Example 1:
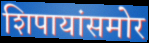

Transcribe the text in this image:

शिपायांसमोर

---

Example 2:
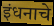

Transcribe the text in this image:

इंधनाचे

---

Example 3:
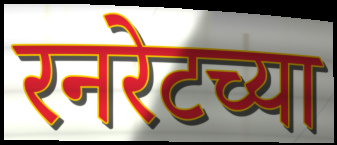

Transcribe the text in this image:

रनरेटच्या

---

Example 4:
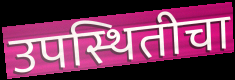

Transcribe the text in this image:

उपस्थितीचा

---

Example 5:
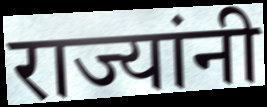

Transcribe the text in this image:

राज्यांनी